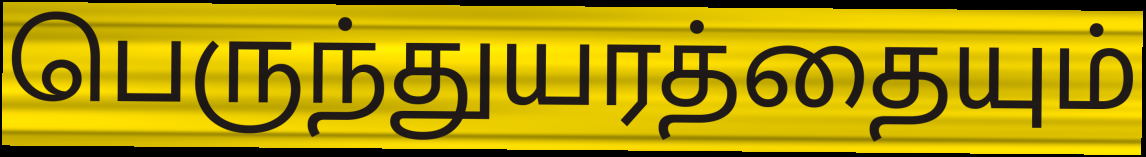
பெருந்துயரத்தையும்